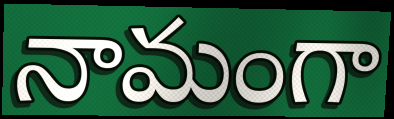
నామంగా